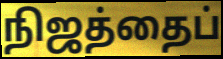
நிஜத்தைப்